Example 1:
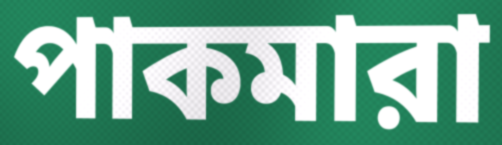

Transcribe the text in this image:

পাকমারা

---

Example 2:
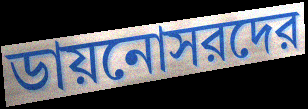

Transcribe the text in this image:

ডায়নোসরদের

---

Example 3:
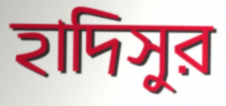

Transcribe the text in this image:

হাদিসুর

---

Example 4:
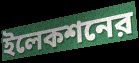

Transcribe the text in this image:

ইলেকশনের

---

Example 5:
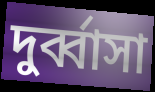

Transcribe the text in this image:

দুর্ব্বাসা